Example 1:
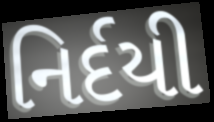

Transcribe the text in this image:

નિર્દયી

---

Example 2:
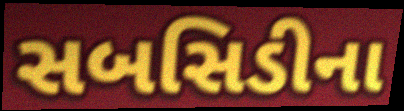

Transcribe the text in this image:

સબસિડીના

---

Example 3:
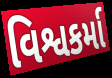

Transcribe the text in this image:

વિશ્વકર્મા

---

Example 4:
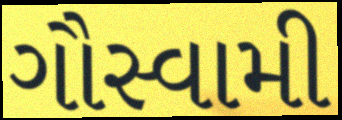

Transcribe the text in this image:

ગૌસ્વામી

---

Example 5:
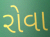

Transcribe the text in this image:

રોવા